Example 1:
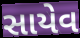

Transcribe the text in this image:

સાયેવ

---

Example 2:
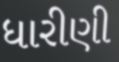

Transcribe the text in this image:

ધારીણી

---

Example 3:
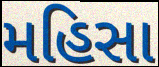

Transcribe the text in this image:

મહિસા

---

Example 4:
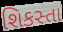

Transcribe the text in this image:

શિકસ્તા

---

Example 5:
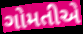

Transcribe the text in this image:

ગોમતીએ